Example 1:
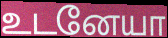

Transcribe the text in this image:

உடனேயா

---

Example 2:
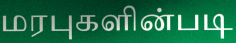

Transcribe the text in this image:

மரபுகளின்படி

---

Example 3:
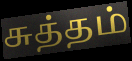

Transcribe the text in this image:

சுத்தம்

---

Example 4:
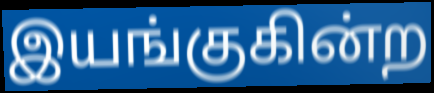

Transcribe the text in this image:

இயங்குகின்ற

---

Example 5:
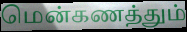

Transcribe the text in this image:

மென்கணத்தும்